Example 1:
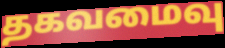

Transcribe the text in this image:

தகவமைவு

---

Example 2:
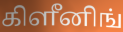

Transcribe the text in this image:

கிளீனிங்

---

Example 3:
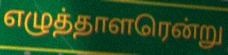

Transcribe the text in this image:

எழுத்தாளரென்று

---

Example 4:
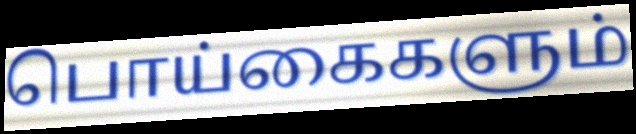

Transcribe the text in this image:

பொய்கைகளும்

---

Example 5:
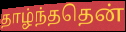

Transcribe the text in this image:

தாழ்ந்ததென்